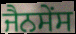
ਜੈਨਸੇਂਸ